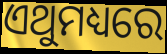
ଏଥୁମଧ୍ୟରେ